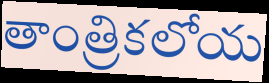
తాంత్రికలోయ